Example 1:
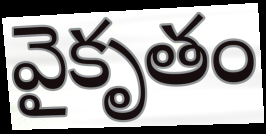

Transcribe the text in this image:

వైకృతం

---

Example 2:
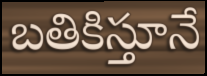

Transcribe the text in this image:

బతికిస్తూనే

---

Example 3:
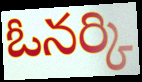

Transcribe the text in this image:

ఓనర్కి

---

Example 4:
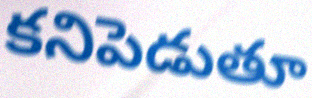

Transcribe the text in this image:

కనిపెడుతూ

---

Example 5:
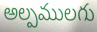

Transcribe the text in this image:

అల్పములగు